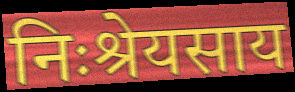
निःश्रेयसाय